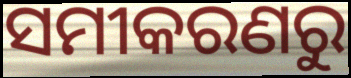
ସମୀକରଣରୁ